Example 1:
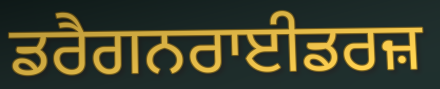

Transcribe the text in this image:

ਡਰੈਗਨਰਾਈਡਰਜ਼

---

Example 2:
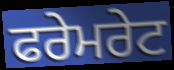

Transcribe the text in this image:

ਫਰੇਮਰੇਟ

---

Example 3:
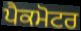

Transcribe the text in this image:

ਪੈਕਮੋਟਰ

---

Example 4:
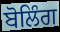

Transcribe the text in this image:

ਬੋਲਿੰਗ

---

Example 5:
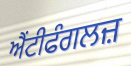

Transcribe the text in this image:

ਐਂਟੀਫੰਗਲਜ਼